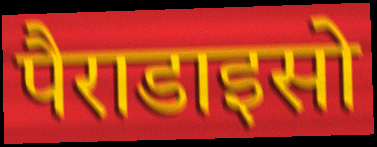
पैराडाइसो